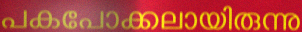
പകപോക്കലായിരുന്നു